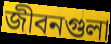
জীবনগুলা